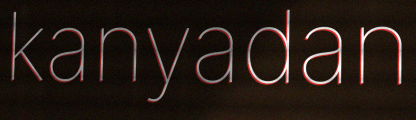
kanyadan